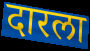
दारला